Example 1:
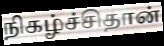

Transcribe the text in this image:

நிகழ்ச்சிதான்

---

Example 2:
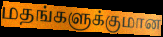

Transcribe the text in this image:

மதங்களுக்குமான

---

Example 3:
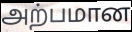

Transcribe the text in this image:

அற்பமான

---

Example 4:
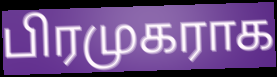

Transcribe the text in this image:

பிரமுகராக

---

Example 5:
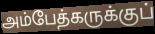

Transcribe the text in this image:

அம்பேத்கருக்குப்